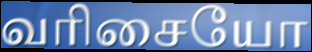
வரிசையோ